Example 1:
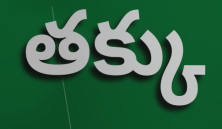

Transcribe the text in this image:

తక్కు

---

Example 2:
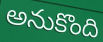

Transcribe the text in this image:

అనుకొంది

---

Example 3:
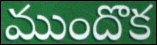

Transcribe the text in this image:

ముందొక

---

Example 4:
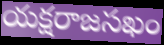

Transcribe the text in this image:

యక్షరాజసఖం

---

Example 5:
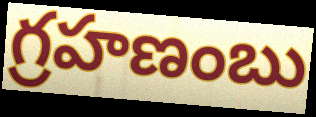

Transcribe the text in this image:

గ్రహణంబు